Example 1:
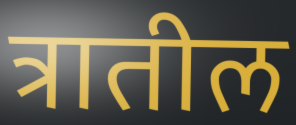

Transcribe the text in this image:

त्रातील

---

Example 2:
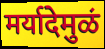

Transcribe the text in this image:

मर्यादेमुळं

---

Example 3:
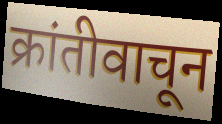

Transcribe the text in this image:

क्रांतीवाचून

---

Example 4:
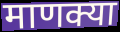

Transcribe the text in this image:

माणक्या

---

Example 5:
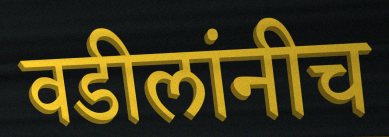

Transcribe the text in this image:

वडीलांनीच